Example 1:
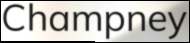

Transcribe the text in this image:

Champney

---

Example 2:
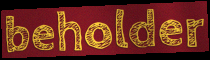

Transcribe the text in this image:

beholder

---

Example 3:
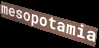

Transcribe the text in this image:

mesopotamia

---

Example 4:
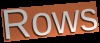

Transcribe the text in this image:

Rows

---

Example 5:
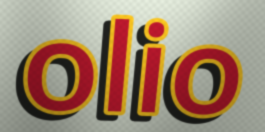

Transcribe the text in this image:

olio